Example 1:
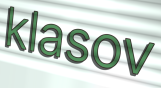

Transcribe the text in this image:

klasov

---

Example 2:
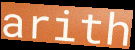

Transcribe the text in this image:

arith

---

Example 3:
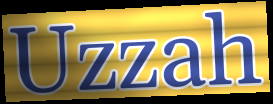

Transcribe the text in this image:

Uzzah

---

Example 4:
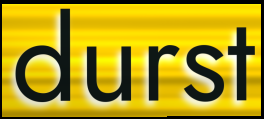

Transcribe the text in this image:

durst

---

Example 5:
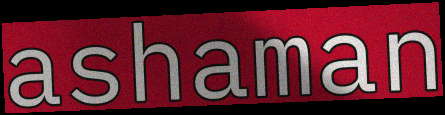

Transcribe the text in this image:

ashaman